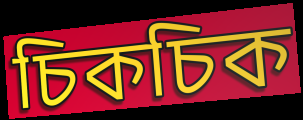
চিকচিক